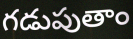
గడుపుతాం